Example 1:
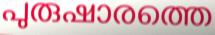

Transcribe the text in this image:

പുരുഷാരത്തെ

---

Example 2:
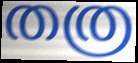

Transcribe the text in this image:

തത്ര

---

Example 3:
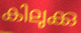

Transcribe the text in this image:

കിലുക്കു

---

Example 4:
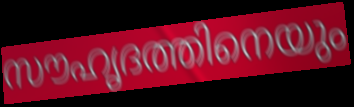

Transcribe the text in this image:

സൗഹൃദത്തിനെയും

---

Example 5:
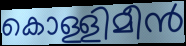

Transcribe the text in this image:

കൊള്ളിമീൻ